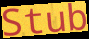
Stub